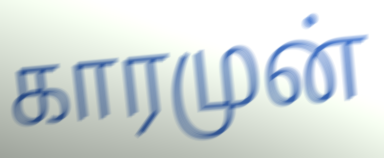
காரமுன்